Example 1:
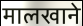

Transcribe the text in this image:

मालखाने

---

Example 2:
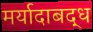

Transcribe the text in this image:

मर्यादाबद्ध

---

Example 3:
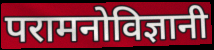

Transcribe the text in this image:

परामनोविज्ञानी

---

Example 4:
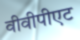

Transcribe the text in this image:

वीवीपीएट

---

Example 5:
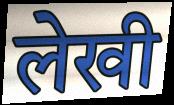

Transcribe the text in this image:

लेखी